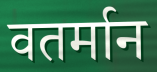
वतर्मान